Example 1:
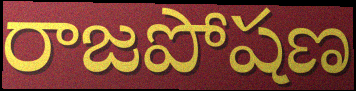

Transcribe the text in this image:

రాజపోషణ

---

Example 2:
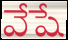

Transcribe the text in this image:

వేషే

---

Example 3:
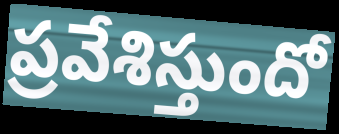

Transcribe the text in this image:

ప్రవేశిస్తుందో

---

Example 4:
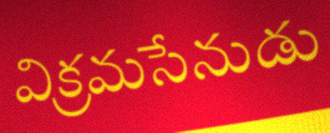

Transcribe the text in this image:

విక్రమసేనుడు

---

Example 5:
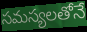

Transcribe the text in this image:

సమస్యలతోనే